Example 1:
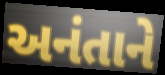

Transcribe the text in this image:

અનંતાને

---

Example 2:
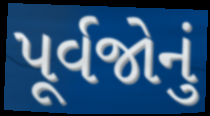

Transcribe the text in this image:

પૂર્વજોનું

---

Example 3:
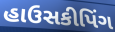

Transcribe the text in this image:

હાઉસકીપિંગ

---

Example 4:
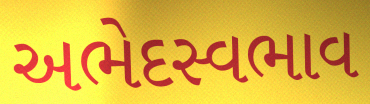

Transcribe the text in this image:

અભેદસ્વભાવ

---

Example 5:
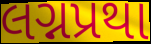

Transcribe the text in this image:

લગ્નપ્રથા